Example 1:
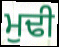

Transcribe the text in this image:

ਮੁਢੀ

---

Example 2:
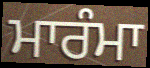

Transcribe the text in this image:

ਮਾਰੰਮਾ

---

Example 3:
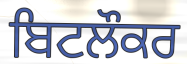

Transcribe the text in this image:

ਬਿਟਲੌਕਰ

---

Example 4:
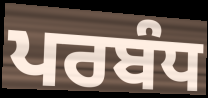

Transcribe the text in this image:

ਪਰਬੰਧ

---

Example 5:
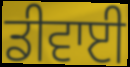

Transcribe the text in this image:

ਡੀਵਾਈ